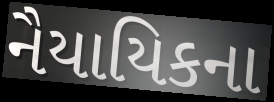
નૈયાયિકના